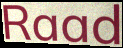
Raad